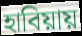
হাবিয়ায়